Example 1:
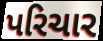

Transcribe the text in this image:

પરિચાર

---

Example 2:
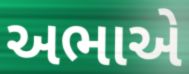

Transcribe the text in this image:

અભાએ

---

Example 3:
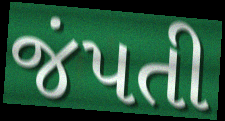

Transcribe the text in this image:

જંપતી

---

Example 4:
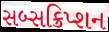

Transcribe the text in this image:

સબ્સક્રિપ્શન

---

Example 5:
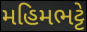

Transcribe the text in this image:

મહિમભટ્ટે